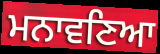
ਮਨਾਵਣਿਆ